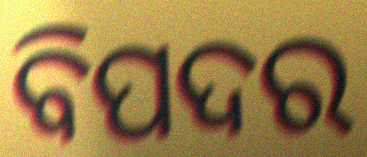
ବିପଦର